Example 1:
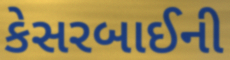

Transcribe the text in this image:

કેસરબાઈની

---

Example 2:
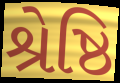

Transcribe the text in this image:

શ્રેષ્ઠિ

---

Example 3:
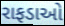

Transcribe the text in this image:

રાફડાઓ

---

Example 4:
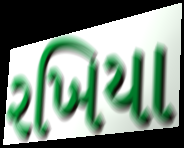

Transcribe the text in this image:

રખિયા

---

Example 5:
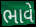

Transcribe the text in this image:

ભાવે